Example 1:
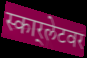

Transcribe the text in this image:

स्कार्लेटवर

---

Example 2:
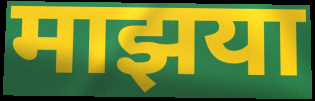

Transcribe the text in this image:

माझया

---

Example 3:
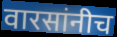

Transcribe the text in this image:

वारसांनीच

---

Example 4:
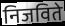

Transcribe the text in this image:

निजविते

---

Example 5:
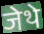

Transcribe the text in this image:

जेथे